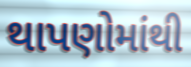
થાપણોમાંથી